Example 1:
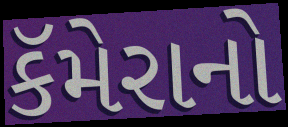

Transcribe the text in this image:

કૅમેરાનો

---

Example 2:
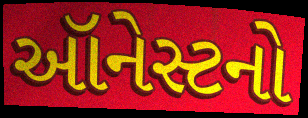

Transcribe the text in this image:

ઑનેસ્ટનો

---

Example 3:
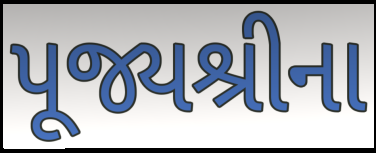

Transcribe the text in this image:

પૂજ્યશ્રીના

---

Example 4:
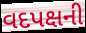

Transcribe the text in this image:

વદપક્ષની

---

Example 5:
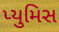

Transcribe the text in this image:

પ્યુમિસ